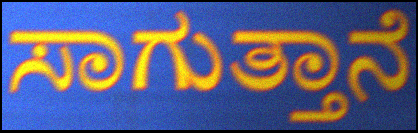
ಸಾಗುತ್ತಾನೆ